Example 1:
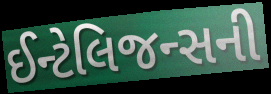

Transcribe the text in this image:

ઈન્ટેલિજન્સની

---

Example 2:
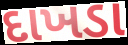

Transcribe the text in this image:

દાખડા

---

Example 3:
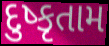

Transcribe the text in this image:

દુષ્કૃતામ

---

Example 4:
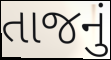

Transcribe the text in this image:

તાજનું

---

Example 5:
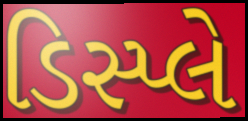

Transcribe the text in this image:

ડિસ્પ્લે